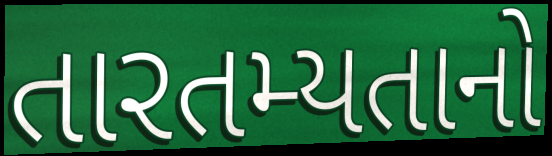
તારતમ્યતાનો